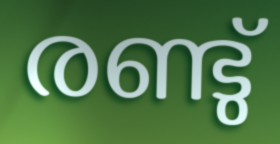
രണ്ടു്